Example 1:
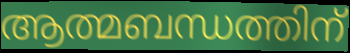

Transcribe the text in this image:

ആത്മബന്ധത്തിന്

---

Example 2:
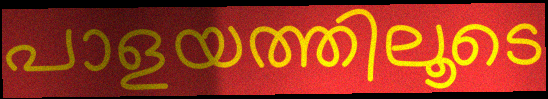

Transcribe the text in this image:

പാളയത്തിലൂടെ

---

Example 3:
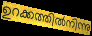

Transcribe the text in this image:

ഉറക്കത്തിൽനിന്നു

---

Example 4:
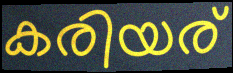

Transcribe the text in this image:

കരിയര്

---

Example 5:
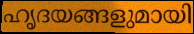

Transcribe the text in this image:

ഹൃദയങ്ങളുമായി